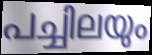
പച്ചിലയും